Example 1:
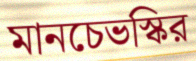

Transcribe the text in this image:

মানচেভস্কির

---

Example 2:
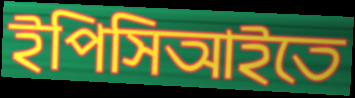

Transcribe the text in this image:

ইপিসিআইতে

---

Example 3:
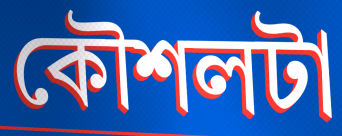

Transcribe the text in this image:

কৌশলটা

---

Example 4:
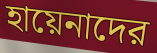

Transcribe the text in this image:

হায়েনাদের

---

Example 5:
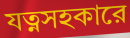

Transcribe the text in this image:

যত্নসহকারে